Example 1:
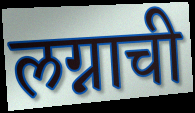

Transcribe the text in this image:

लग्नाची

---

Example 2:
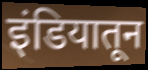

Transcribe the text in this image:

इंडियातून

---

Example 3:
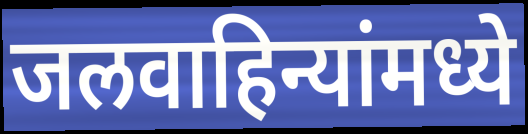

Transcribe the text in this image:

जलवाहिन्यांमध्ये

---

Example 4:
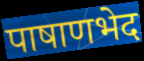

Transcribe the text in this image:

पाषाणभेद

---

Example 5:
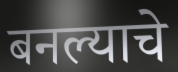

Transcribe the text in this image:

बनल्याचे